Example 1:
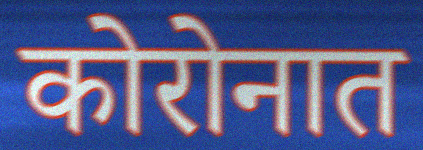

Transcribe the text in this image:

कोरोनात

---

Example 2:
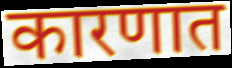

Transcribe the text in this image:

कारणात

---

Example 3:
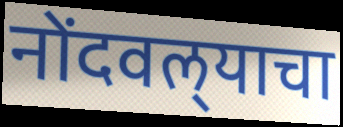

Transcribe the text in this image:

नोंदवल्याचा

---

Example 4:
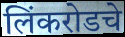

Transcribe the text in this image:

लिंकरोडचे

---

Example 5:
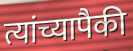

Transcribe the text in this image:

त्यांच्यापैकी